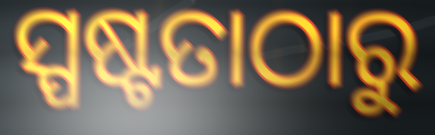
ସ୍ପଷ୍ଟତାଠାରୁ